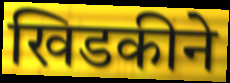
खिडकीने